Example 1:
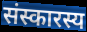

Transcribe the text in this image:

संस्कारस्य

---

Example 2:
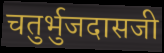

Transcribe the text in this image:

चतुर्भुजदासजी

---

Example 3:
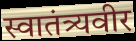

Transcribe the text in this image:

स्वातंत्र्यवीर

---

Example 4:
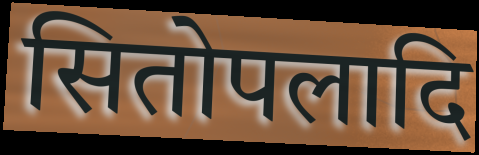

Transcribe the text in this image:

सितोपलादि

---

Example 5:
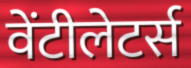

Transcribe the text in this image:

वेंटीलेटर्स